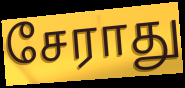
சேராது